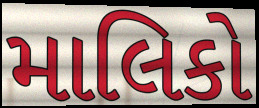
માલિકો